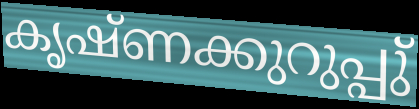
കൃഷ്ണക്കുറുപ്പു്